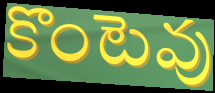
కొంటెవు